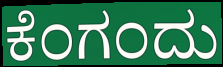
ಕೆಂಗಂದು